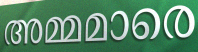
അമ്മമാരെ